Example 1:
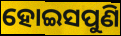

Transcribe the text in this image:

ହୋଇସପୁଣି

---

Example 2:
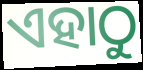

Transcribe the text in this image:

ଏହାଠୁ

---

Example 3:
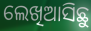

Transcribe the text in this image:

ଲେଖିଆସିଛୁ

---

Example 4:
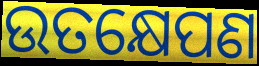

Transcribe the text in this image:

ଉତକ୍ଷେପଣ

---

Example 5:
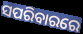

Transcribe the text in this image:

ସପରିବାରରେ